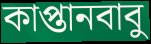
কাপ্তানবাবু